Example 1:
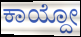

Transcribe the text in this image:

ಕಾಯ್ದೋ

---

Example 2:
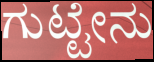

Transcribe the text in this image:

ಗುಟ್ಟೇನು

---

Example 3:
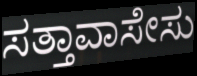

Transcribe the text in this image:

ಸತ್ತಾವಾಸೇಸು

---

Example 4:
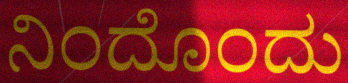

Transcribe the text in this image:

ನಿಂದೊಂದು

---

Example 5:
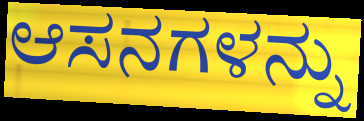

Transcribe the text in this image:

ಆಸನಗಳನ್ನು